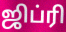
ஜிப்ரி